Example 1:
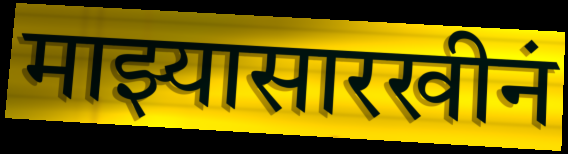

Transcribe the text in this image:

माझ्यासारखीनं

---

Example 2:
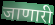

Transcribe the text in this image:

जाणारी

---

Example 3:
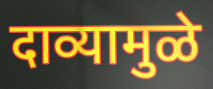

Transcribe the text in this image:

दाव्यामुळे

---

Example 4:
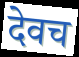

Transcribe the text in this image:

देवच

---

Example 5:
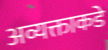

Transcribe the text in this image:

अव्यक्ताकडे